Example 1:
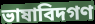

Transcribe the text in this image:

ভাষাবিদগণ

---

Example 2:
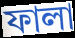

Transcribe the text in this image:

ফালা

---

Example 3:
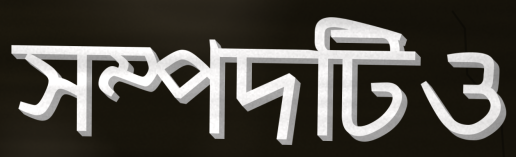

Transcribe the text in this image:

সম্পদটিও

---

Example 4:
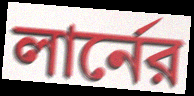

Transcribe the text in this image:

লার্নের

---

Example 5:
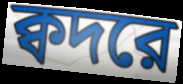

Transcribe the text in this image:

ক্বদরে